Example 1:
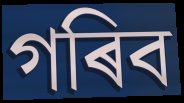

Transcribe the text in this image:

গৰিব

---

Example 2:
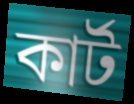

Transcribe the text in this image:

কাৰ্ট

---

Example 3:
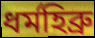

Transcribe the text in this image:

ধৰ্মহিব্ৰু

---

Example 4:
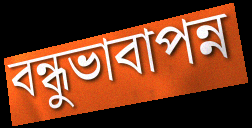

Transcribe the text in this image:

বন্ধুভাবাপন্ন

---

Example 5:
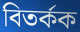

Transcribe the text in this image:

বিতৰ্কক